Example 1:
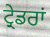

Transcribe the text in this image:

ਟ੍ਰੇਡਰਾਂ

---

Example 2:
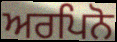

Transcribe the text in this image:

ਅਰਪਿਨੋ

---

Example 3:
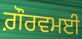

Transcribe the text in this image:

ਗ਼ੌਰਵਮਈ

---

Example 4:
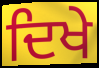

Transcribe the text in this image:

ਦਿਖੇ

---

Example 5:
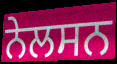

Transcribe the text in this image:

ਨੇਲਸਨ